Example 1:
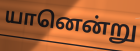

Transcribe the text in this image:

யானென்று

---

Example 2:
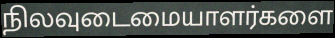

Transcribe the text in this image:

நிலவுடைமையாளர்களை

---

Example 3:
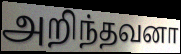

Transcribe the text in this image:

அறிந்தவனா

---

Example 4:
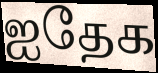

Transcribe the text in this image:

ஐதேக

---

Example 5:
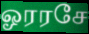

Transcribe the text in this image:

ஓரரசே